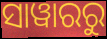
ସାୱାରରୁ